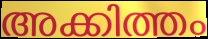
അക്കിത്തം